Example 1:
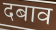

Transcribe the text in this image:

दबाव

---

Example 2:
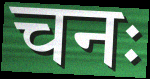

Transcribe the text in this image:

चनः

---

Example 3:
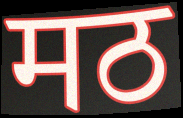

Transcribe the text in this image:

मठ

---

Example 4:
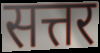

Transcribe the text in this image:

सत्तर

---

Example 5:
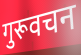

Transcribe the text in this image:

गुरूवचन